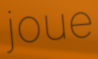
joue